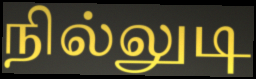
நில்லுடி